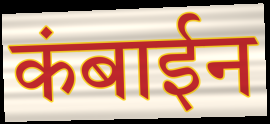
कंबाईन